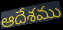
ఆదేశము